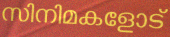
സിനിമകളോട്